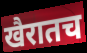
खैरातच